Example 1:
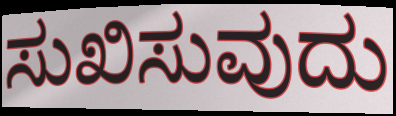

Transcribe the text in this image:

ಸುಖಿಸುವುದು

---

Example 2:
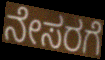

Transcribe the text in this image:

ನೇಸರಗೆ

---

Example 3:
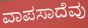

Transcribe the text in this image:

ವಾಪಸಾದೆವು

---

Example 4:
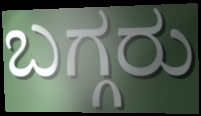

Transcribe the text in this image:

ಬಗ್ಗರು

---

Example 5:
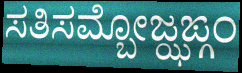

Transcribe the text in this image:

ಸತಿಸಮ್ಬೋಜ್ಝಙ್ಗಂ